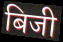
बिजी